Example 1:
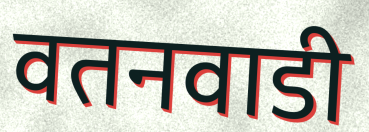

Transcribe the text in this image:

वतनवाडी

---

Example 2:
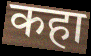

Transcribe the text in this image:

कहा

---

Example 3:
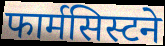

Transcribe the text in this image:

फार्मसिस्टने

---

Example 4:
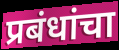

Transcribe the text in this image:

प्रबंधांचा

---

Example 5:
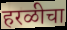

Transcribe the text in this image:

हरळीचा